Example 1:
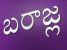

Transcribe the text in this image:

బరాజ్ల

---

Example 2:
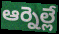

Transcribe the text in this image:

ఆర్నెల్లే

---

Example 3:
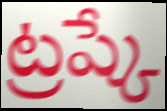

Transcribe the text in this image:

ట్రష్కే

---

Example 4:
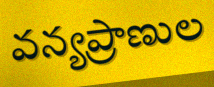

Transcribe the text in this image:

వన్యప్రాణుల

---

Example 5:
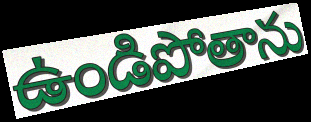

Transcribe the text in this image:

ఉండిపోతాను